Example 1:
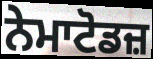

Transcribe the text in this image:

ਨੇਮਾਟੋਡਜ਼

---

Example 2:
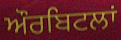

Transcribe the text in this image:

ਔਰਬਿਟਲਾਂ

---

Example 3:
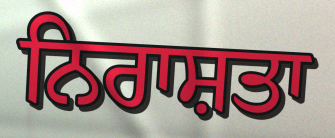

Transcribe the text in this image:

ਨਿਰਾਸ਼ਤਾ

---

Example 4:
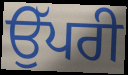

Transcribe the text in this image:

ਉੱਪਰੀ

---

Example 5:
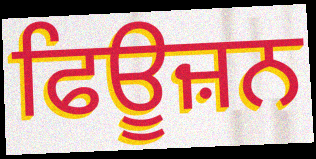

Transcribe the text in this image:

ਫਿਊਜ਼ਨ